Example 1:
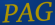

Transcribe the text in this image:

PAG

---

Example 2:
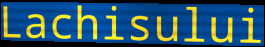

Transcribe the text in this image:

Lachisului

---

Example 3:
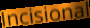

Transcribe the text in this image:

Incisional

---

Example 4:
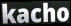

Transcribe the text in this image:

kacho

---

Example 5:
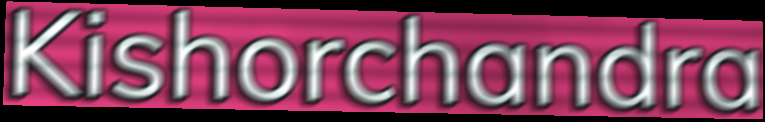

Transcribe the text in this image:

Kishorchandra